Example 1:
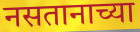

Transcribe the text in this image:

नसतानाच्या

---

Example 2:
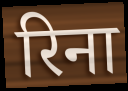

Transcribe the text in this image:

रिना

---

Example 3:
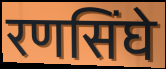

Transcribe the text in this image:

रणसिंघे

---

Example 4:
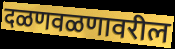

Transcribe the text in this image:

दळणवळणावरील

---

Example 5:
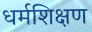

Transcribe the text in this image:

धर्मशिक्षण